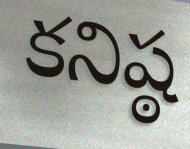
కనిష్ఠ